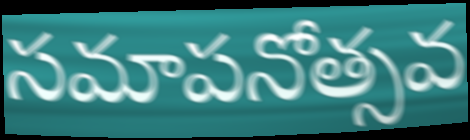
సమాపనోత్సవ